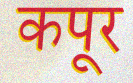
कपूर